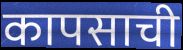
कापसाची